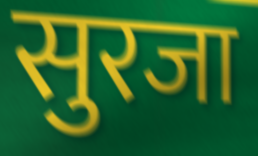
सुरजा